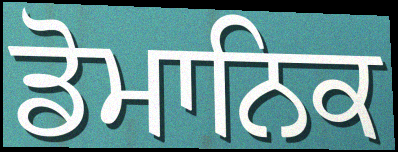
ਡੋਮਾਨਿਕ